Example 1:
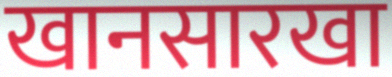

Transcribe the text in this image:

खानसारखा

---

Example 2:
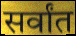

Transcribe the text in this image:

सर्वांत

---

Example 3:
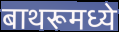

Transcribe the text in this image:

बाथरूमध्ये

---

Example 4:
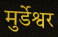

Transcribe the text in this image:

मुर्डेश्वर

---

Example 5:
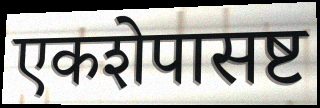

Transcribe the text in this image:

एकशेपासष्ट